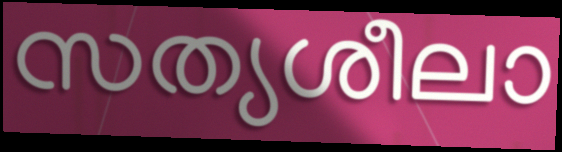
സത്യശീലാ